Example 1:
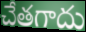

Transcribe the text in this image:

చేతగాదు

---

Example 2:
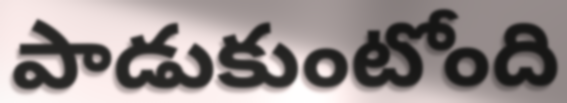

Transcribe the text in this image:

పాడుకుంటోంది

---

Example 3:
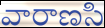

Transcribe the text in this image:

వారాణసి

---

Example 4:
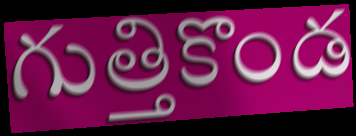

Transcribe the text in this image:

గుత్తికొండ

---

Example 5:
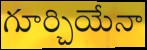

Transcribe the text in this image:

గూర్చియేనా